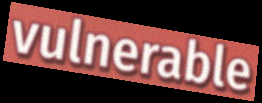
vulnerable